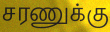
சரணுக்கு